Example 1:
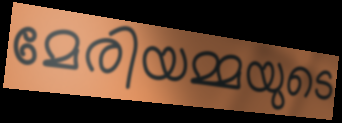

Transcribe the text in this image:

മേരിയമ്മയുടെ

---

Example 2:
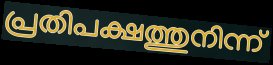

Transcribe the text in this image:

പ്രതിപക്ഷത്തുനിന്ന്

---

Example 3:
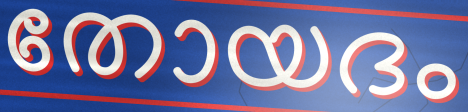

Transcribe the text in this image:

തോയദം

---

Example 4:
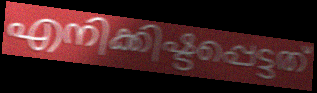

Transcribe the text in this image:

എനിക്കിഷ്ടപ്പെട്ടത്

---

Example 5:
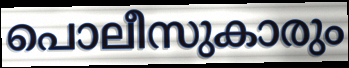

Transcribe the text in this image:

പൊലീസുകാരും